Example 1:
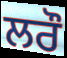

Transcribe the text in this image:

ਲਰੌ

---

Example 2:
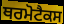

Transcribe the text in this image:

ਥਰਮੋਟੈਕਸ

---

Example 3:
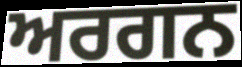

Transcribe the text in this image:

ਅਰਗਨ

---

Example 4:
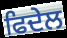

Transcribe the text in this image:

ਫਿਦੇਲ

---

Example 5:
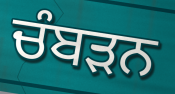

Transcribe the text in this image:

ਚੰਬੜਨ